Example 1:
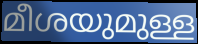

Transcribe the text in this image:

മീശയുമുള്ള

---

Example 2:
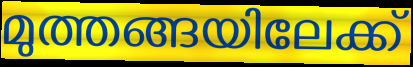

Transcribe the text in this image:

മുത്തങ്ങയിലേക്ക്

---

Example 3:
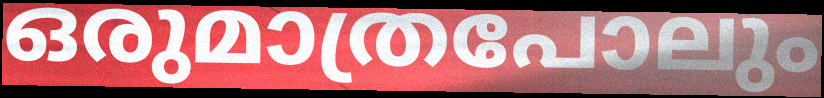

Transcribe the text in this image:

ഒരുമാത്രപോലും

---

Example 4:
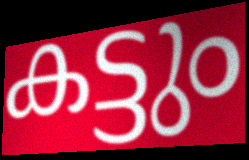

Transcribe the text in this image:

കട്ടും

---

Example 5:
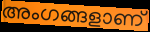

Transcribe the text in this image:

അംഗങ്ങളാണ്